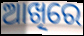
ଆଖିରେ